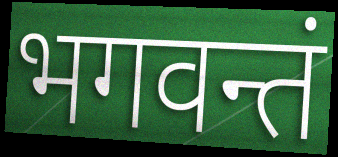
भगवन्तं